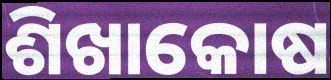
ଶିଖାକୋଷ